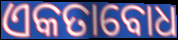
ଏକତାବୋଧ